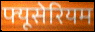
फ्यूसेरियम